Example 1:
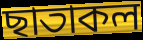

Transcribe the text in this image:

ছাতাকল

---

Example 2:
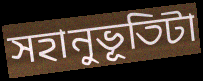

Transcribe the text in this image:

সহানুভূতিটা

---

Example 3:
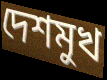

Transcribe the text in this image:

দেশমুখ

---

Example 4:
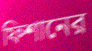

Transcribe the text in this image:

ফিশানের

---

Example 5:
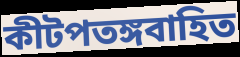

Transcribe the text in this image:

কীটপতঙ্গবাহিত